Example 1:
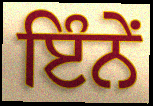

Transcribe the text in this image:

ਇੰਨੇਂ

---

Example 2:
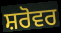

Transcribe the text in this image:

ਸ਼ਰੋਵਰ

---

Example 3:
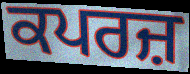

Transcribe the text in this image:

ਕਪਰਜ਼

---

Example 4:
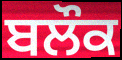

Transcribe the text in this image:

ਬਲੌਕ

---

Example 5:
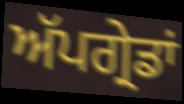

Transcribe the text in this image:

ਅੱਪਗ੍ਰੇਡਾਂ